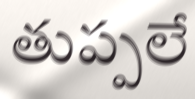
తుప్పలే